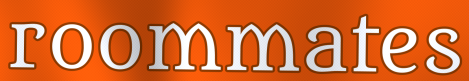
roommates